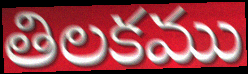
తిలకము